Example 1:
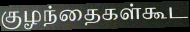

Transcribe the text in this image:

குழந்தைகள்கூட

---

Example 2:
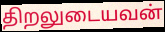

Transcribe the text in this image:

திறலுடையவன்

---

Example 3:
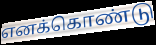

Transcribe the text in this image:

எனக்கொண்டு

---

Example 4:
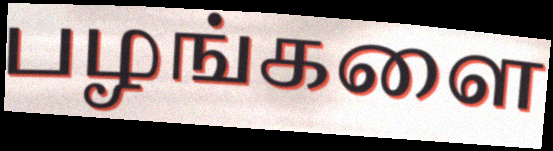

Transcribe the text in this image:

பழங்களை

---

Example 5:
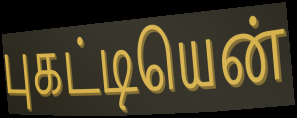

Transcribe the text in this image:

புகட்டியென்